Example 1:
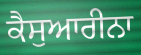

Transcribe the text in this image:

ਕੈਸੁਆਰੀਨਾ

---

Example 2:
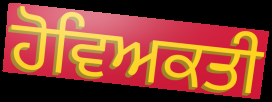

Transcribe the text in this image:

ਹੋਵਿਅਕਤੀ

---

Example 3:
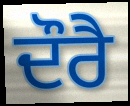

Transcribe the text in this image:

ਦੌਰੈ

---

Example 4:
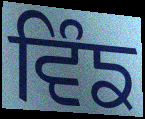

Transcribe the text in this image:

ਵਿੰਙ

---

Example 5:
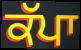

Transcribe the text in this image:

ਕੱਪਾ